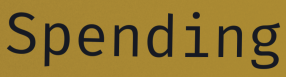
Spending